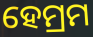
ହେମ୍ରମ